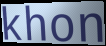
khon